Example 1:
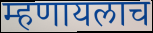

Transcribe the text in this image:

म्हणायलाच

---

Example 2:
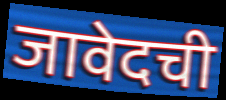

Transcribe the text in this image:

जावेदची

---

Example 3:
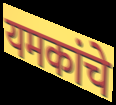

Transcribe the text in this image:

यमकांचे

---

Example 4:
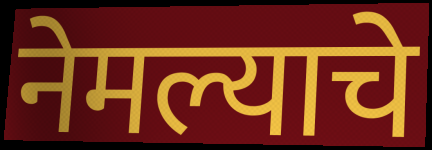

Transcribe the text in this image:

नेमल्याचे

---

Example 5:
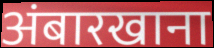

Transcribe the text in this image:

अंबारखाना